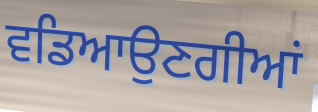
ਵਡਿਆਉਣਗੀਆਂ